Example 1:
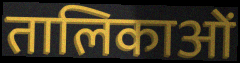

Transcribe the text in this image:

तालिकाओं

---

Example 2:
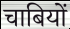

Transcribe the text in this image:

चाबियों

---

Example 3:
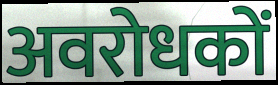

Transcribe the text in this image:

अवरोधकों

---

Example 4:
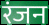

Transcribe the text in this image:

रंजन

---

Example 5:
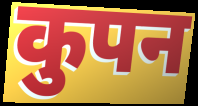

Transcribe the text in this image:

कुपन